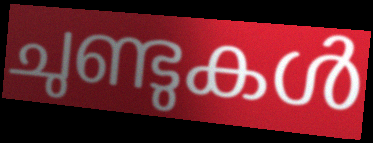
ചുണ്ടുകൾ